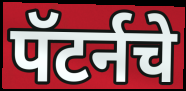
पॅटर्नचे